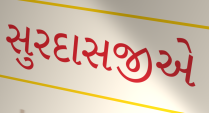
સુરદાસજીએ